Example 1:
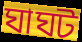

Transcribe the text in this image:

ঘাঘট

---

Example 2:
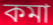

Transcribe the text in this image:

কমা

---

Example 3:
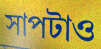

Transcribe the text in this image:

সাপটাও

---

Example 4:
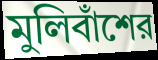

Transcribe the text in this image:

মুলিবাঁশের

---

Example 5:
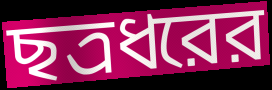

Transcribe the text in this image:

ছত্রধরের